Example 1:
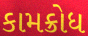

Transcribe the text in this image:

કામક્રોધ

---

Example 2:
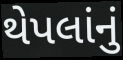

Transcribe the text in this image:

થેપલાંનું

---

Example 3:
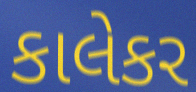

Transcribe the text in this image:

કાલેકર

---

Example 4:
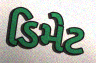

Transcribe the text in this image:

ડિમેટ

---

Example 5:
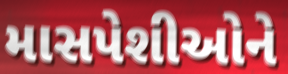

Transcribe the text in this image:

માસપેશીઓને